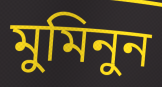
মুমিনুন